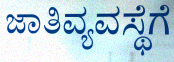
ಜಾತಿವ್ಯವಸ್ಥೆಗೆ